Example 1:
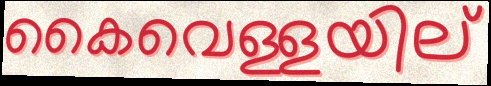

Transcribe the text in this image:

കൈവെള്ളയില്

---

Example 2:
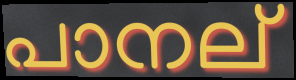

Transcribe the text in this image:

പാനല്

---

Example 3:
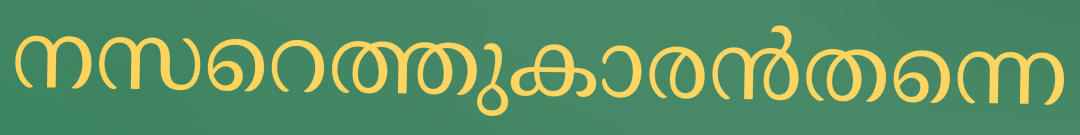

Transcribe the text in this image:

നസറെത്തുകാരൻതന്നെ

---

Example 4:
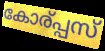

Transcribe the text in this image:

കോര്പ്പസ്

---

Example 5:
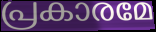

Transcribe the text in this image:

പ്രകാരമേ